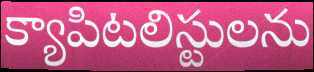
క్యాపిటలిస్టులను